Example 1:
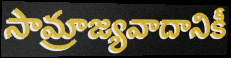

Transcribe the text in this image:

సామ్రాజ్యవాదానికీ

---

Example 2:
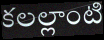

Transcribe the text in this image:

కలల్లాంటి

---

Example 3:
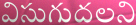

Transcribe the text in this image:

విసుగుదలని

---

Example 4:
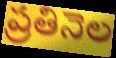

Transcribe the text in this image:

ప్రతినెల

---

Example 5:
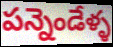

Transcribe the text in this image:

పన్నెండేళ్ళ